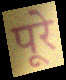
पूरे